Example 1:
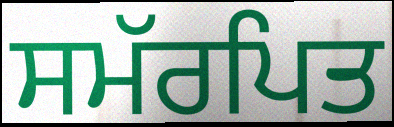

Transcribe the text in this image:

ਸਮੱਰਪਿਤ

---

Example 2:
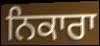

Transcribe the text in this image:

ਨਿਕਾਰਾ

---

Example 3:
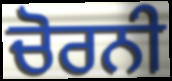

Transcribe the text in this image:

ਚੋਰਨੀ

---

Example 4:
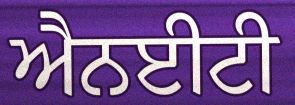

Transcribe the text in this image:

ਐਨਈਟੀ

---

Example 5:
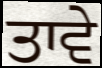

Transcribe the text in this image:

ਤਾਵੇ